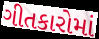
ગીતકારોમાં